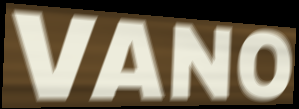
VANO